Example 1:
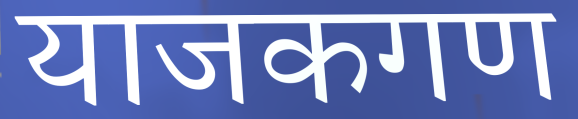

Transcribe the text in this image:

याजकगण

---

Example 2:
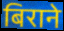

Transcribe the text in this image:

बिराने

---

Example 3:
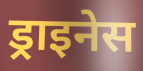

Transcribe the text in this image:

ड्राइनेस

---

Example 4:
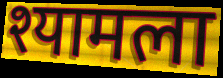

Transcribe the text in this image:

श्यामला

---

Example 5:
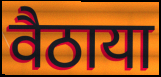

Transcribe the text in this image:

वैठाया